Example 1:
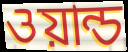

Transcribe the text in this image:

ওয়ান্ড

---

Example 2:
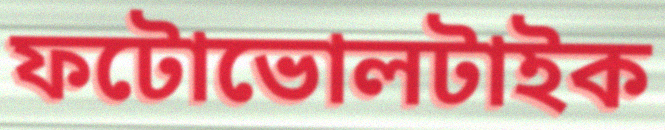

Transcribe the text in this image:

ফটোভোলটাইক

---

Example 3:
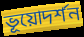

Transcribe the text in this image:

ভূয়োদর্শন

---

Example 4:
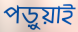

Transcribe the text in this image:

পড়ুয়াই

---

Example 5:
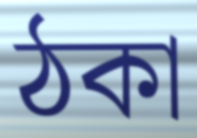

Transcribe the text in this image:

ঠকা